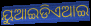
ୟୁଆଇଡିଏଆଇ